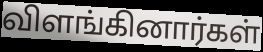
விளங்கினார்கள்